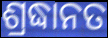
ଶ୍ରଦ୍ଧାନତ